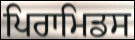
ਪਿਰਾਮਿਡਸ